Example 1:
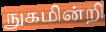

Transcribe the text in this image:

நுகமின்றி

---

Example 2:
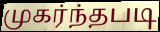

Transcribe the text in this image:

முகர்ந்தபடி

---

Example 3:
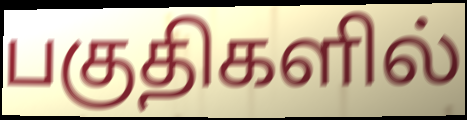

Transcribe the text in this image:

பகுதிகளில்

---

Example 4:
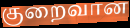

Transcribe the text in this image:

குறைவான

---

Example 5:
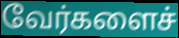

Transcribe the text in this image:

வேர்களைச்